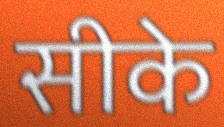
सीके